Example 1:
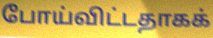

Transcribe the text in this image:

போய்விட்டதாகக்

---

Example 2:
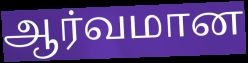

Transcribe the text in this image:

ஆர்வமான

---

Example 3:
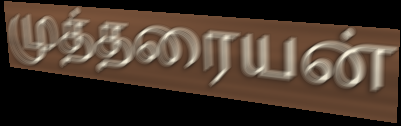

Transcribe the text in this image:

முத்தரையன்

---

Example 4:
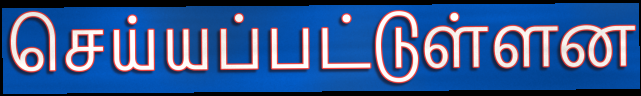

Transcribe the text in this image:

செய்யப்பட்டுள்ளன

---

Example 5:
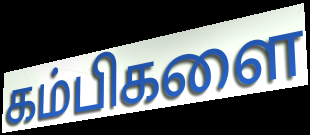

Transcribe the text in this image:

கம்பிகளை